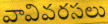
వావివరసలు